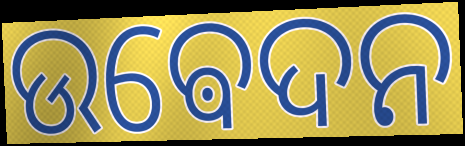
ଉଵେଦନ